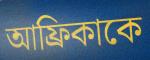
আফ্রিকাকে